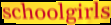
schoolgirls